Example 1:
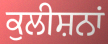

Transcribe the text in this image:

ਕੁਲੀਸ਼ਨਾਂ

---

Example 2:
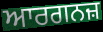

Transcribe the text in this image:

ਆਰਗਨਜ਼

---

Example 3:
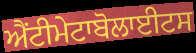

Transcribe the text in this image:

ਐਂਟੀਮੇਟਾਬੋਲਾਈਟਸ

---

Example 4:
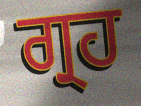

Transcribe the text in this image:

ਗ੍ਰਹ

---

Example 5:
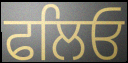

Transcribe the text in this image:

ਫਲਿਓ